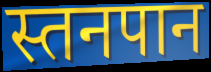
स्तनपान